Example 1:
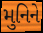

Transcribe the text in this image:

મુનિને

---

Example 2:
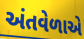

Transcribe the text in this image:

અંતવેળાએ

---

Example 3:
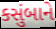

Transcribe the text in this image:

કસુંબાને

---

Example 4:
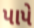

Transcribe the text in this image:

પાપે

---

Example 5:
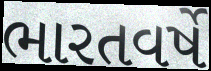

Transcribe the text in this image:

ભારતવર્ષે